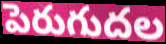
పెరుగుదల